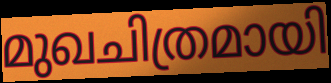
മുഖചിത്രമായി